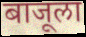
बाजूला